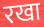
रखा